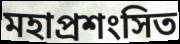
মহাপ্রশংসিত